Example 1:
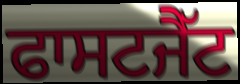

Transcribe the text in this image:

ਫਾਸਟਜੈੱਟ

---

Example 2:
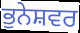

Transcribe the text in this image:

ਭੁਨੇਸ਼ਵਰ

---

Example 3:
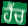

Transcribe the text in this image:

ਹੈਂਚ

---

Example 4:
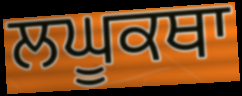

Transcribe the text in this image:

ਲਘੂਕਥਾ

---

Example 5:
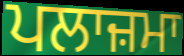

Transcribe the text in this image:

ਪਲਾਜ਼ਮਾ